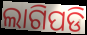
ଲାଗିପଡି